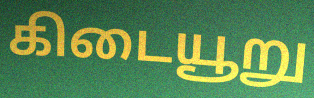
கிடையூறு